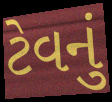
ટેવનું